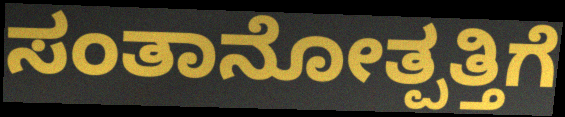
ಸಂತಾನೋತ್ಪತ್ತಿಗೆ